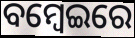
ବମ୍ବେଇରେ